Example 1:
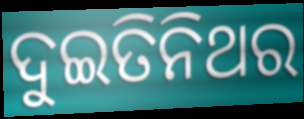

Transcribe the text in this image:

ଦୁଇତିନିଥର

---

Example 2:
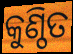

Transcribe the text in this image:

କୁଣ୍ଠିତ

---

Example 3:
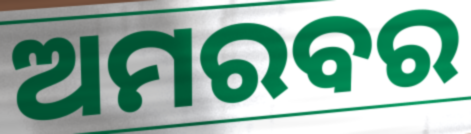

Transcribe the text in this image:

ଅମରବର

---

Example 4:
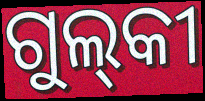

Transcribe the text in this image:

ଗୁଲ୍‌କୀ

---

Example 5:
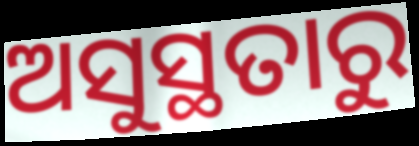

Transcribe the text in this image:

ଅସୁସ୍ଥତାରୁ